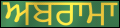
ਅਬਰਾਮਾ